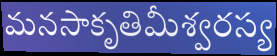
మనసాకృతిమీశ్వరస్య